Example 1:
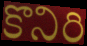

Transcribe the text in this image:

కొనిరి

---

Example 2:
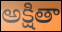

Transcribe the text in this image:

అక్షితా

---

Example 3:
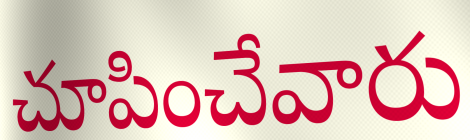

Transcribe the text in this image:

చూపించేవారు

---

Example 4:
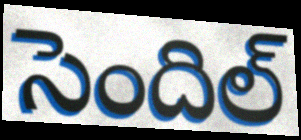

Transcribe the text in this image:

సెందిల్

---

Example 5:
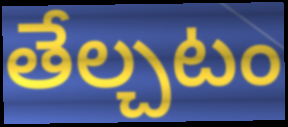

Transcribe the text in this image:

తేల్చటం